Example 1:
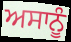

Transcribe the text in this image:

ਅਸਾਨੂੰ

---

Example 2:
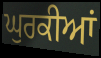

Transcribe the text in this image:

ਘੁਰਕੀਆਂ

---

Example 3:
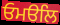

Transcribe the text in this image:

ਓਮੳਲਿ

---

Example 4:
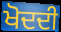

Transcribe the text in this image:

ਖੋਦਦੀ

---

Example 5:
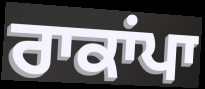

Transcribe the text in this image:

ਰਾਕਾਂਪਾ